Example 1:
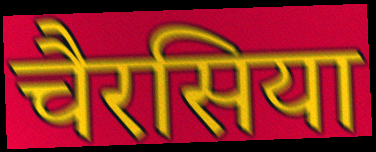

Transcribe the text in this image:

चैरसिया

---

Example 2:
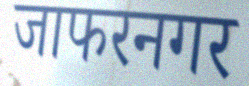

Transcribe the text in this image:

जाफरनगर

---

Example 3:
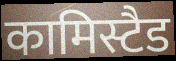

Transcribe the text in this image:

कामिस्टैड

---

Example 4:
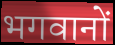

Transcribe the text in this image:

भगवानों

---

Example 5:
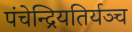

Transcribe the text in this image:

पंचेन्द्रियतिर्यञ्च